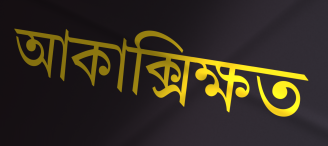
আকাক্সিক্ষত